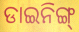
ଡାଇନିଙ୍ଗ୍